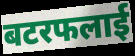
बटरफलाई